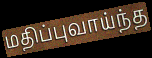
மதிப்புவாய்ந்த